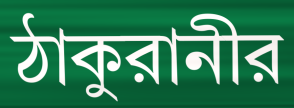
ঠাকুরানীর